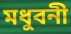
মধুবনী